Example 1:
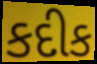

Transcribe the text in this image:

કદીક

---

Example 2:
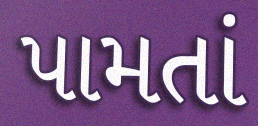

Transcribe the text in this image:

પામતાં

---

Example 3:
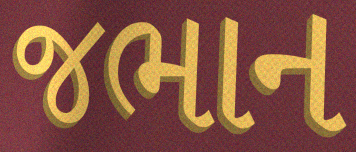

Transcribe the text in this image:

જભાન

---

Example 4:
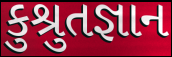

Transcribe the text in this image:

કુશ્રુતજ્ઞાન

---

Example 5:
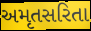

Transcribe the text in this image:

અમૃતસરિતા